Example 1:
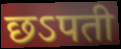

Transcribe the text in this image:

छऽपती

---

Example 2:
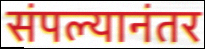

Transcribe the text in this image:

संपल्यानंतर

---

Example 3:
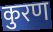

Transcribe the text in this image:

कुरण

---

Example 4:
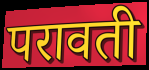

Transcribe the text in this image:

परावती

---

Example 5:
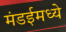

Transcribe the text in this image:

मंडईमध्ये